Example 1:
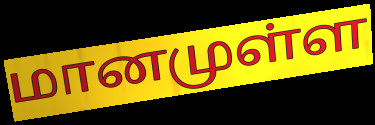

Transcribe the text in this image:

மானமுள்ள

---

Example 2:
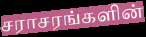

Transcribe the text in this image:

சராசரங்களின்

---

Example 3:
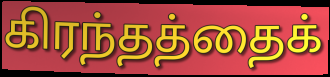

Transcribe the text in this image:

கிரந்தத்தைக்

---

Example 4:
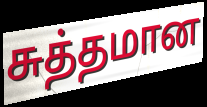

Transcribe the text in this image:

சுத்தமான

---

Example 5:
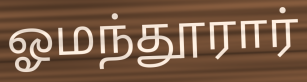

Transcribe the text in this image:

ஓமந்தூரார்